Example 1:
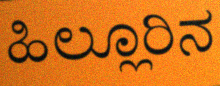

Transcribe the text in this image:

ಹಿಲ್ಲೂರಿನ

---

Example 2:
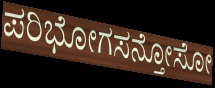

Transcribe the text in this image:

ಪರಿಭೋಗಸನ್ತೋಸೋ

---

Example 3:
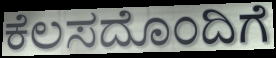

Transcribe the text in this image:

ಕೆಲಸದೊಂದಿಗೆ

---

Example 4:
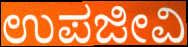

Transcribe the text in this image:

ಉಪಜೀವಿ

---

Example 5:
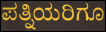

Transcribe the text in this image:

ಪತ್ನಿಯರಿಗೂ